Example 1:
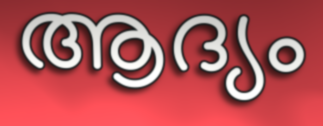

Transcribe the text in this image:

ആദ്യം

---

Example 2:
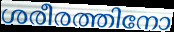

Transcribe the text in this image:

ശരീരത്തിനോ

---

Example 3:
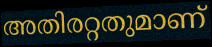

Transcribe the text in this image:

അതിരറ്റതുമാണ്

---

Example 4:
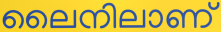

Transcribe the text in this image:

ലൈനിലാണ്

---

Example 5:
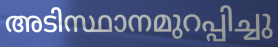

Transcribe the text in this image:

അടിസ്ഥാനമുറപ്പിച്ചു